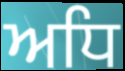
ਅਧਿ